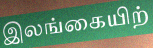
இலங்கையிற்